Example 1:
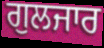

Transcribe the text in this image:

ਗੁਲਜਾਰ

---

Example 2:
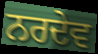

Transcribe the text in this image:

ਨਰਦੇਵ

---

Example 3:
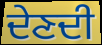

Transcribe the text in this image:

ਦੇਣਦੀ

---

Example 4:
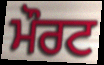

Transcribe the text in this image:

ਮੌਰਟ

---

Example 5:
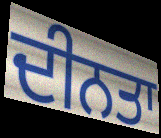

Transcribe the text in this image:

ਦੀਨਤਾ